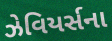
ઝેવિયર્સના